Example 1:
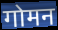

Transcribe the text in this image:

गोमन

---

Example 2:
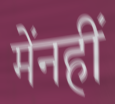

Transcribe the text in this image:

मेंनहीं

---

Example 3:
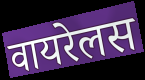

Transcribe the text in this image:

वायरेलस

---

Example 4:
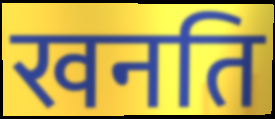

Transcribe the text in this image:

खनति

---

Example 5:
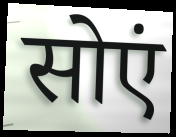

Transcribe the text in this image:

सोएं